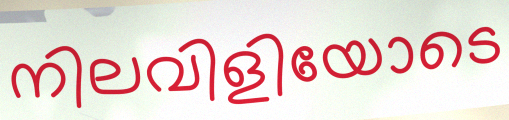
നിലവിളിയോടെ